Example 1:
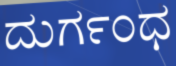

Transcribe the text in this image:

ದುರ್ಗಂಧ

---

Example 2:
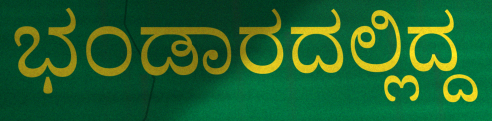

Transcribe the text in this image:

ಭಂಡಾರದಲ್ಲಿದ್ದ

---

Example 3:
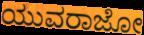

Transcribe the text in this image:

ಯುವರಾಜೋ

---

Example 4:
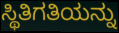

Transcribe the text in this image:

ಸ್ಥಿತಿಗತಿಯನ್ನು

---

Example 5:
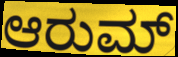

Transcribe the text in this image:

ಆರುಮ್